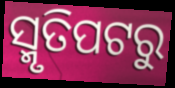
ସ୍ମୃତିପଟରୁ